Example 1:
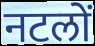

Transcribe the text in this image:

नटलों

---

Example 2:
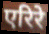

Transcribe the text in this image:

एरिरे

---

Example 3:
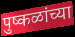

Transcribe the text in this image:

पुष्कळांच्या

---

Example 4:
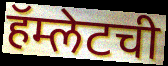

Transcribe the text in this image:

हॅम्लेटची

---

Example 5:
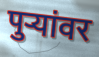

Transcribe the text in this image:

पुऱ्यांवर